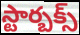
స్టార్బక్స్